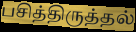
பசித்திருத்தல்